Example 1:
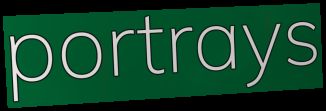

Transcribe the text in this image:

portrays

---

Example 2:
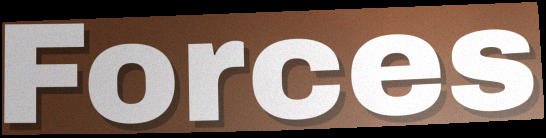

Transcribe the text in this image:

Forces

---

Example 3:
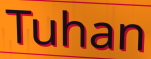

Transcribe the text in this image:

Tuhan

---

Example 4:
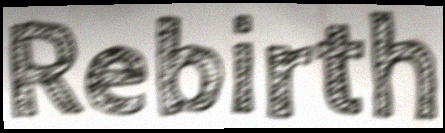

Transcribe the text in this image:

Rebirth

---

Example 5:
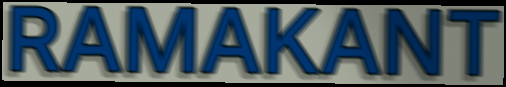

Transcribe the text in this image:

RAMAKANT